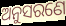
ଅନୁସରଣେ